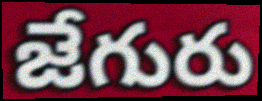
జేగురు